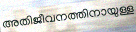
അതിജീവനത്തിനായുള്ള